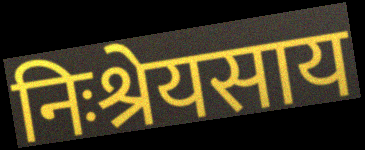
निःश्रेयसाय